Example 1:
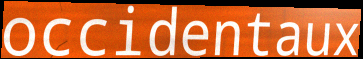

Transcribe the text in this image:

occidentaux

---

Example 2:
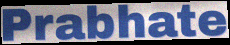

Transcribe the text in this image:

Prabhate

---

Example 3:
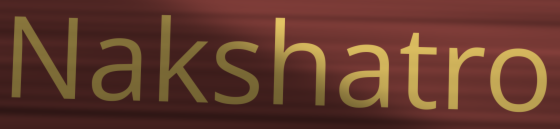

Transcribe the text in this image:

Nakshatro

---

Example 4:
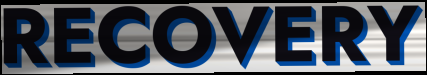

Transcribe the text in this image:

RECOVERY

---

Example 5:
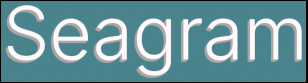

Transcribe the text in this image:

Seagram